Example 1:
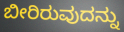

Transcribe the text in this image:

ಬೀರಿರುವುದನ್ನು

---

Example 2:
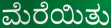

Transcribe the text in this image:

ಮೆರೆಯಿತು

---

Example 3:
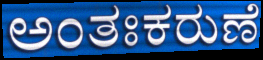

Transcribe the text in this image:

ಅಂತಃಕರುಣೆ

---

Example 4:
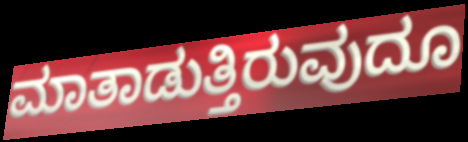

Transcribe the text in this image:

ಮಾತಾಡುತ್ತಿರುವುದೂ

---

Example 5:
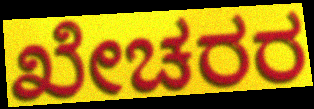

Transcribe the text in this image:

ಖೇಚರರ